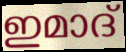
ഇമാദ്